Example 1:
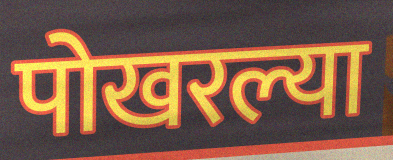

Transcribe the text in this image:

पोखरल्या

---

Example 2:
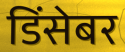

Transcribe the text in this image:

डिंसेबर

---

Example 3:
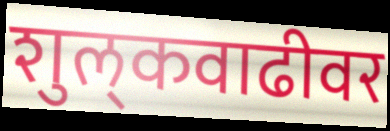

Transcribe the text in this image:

शुल्कवाढीवर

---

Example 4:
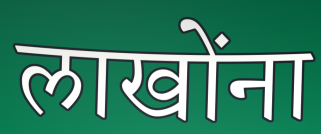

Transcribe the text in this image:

लाखोंना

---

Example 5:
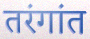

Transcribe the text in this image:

तरंगांत